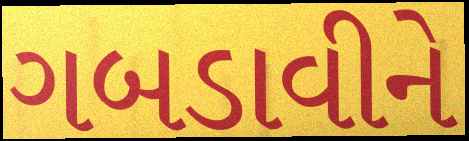
ગબડાવીને